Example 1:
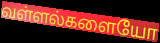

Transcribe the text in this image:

வள்ளல்களையோ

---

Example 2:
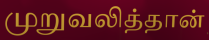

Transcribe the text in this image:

முறுவலித்தான்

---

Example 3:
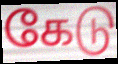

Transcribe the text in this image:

கேடு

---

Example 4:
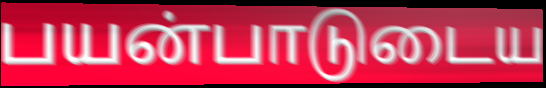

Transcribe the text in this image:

பயன்பாடுடைய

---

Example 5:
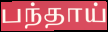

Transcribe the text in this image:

பந்தாய்